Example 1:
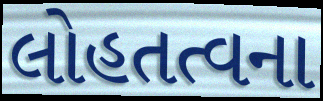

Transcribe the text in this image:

લોહતત્વના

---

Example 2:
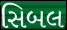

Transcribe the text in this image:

સિબલ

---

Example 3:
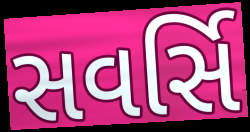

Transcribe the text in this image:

સવર્સિ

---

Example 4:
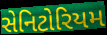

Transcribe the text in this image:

સેનિટોરિયમ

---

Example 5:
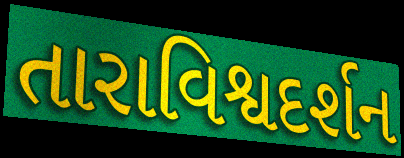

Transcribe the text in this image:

તારાવિશ્વદર્શન